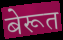
बेरूत